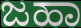
ಜಹಾ